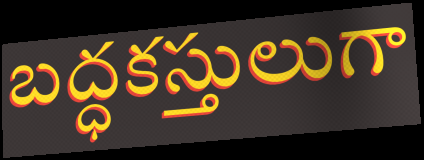
బద్ధకస్తులుగా